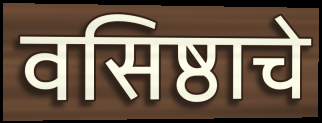
वसिष्ठाचे